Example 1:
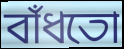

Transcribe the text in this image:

বাঁধতো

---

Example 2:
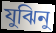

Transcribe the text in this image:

যুঝিনু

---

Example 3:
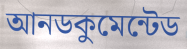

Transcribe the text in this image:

আনডকুমেন্টেড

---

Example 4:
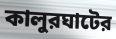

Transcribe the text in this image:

কালুরঘাটের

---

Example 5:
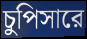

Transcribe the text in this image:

চুপিসারে